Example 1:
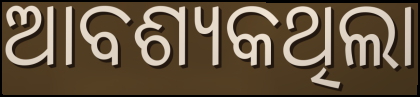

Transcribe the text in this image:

ଆବଶ୍ୟକଥିଲା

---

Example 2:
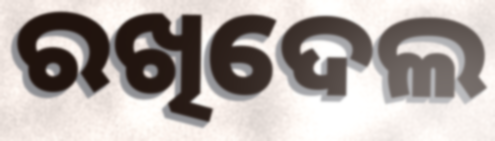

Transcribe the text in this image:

ରଖିଦେଲ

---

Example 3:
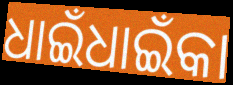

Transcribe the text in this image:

ଧାଇଁଧାଇଁକା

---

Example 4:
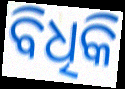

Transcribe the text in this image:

ବିଧିକି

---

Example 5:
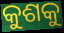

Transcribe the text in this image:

କୁଶକୁ